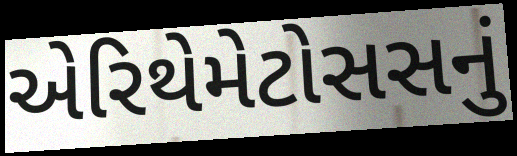
એરિથેમેટોસસનું